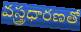
వస్త్రధారణతో